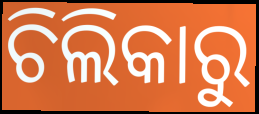
ଚିଲିକାରୁ